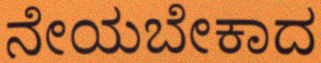
ನೇಯಬೇಕಾದ